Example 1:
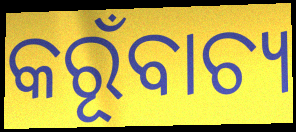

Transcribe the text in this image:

କରୂଁବାଚ୍ୟ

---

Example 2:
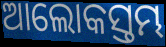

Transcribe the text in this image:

ଆଲୋକସ୍ତମ୍ଭ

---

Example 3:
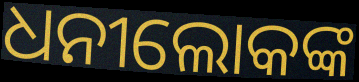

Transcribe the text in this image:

ଧନୀଲୋକଙ୍କ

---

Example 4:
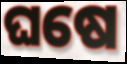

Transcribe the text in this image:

ଘଷେ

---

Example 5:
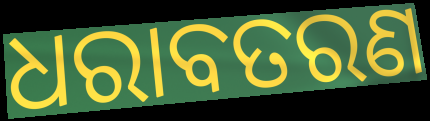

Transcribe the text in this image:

ଧରାବତରଣ